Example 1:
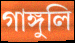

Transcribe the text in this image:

গাঙ্গুলি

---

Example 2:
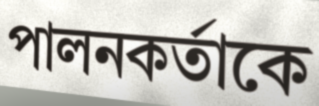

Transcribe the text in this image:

পালনকর্তাকে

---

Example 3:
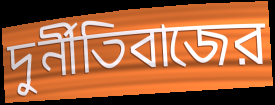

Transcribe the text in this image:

দুর্নীতিবাজের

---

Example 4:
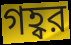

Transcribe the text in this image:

গহ্বর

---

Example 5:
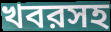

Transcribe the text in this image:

খবরসহ